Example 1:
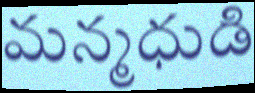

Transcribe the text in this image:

మన్మధుడి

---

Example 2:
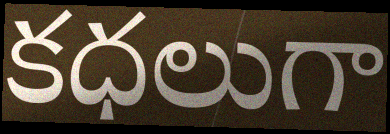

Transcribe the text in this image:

కధలుగా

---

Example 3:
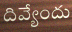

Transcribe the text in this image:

దివ్యేందు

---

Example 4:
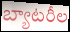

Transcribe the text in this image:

బ్యాటరీల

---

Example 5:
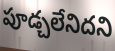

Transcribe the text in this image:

పూడ్చలేనిదని